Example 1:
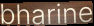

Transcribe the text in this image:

bharine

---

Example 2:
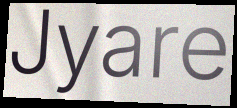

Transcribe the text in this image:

Jyare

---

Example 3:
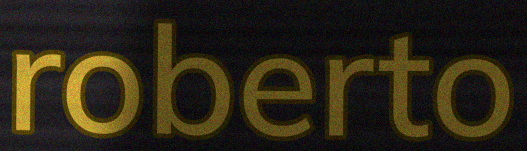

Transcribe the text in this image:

roberto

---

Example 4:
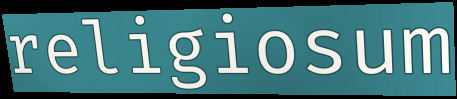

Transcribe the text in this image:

religiosum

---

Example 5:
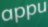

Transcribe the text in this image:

appu